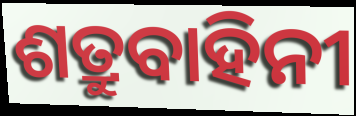
ଶତ୍ରୁବାହିନୀ